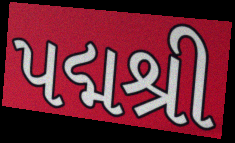
પદ્મશ્રી